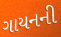
ગાયનની